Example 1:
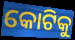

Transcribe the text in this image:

କୋଟିକୁ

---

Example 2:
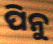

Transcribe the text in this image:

ପିନୁ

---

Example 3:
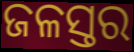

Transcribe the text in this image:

ଜଳସ୍ତର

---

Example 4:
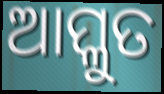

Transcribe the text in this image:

ଆପ୍ଳୁତ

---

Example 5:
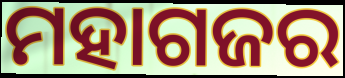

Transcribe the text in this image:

ମହାଗଜର